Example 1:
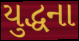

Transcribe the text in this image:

યુદ્ધના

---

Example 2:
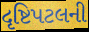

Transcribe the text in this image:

દૃષ્ટિપટલની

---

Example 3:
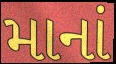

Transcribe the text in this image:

માનાં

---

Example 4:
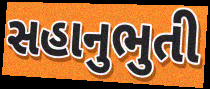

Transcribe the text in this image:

સહાનુભુતી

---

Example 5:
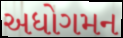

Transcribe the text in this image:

અધોગમન